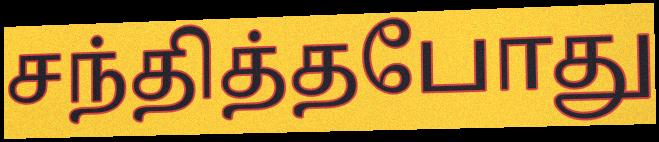
சந்தித்தபோது